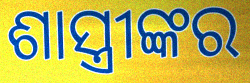
ଶାସ୍ତ୍ରୀଙ୍କର